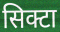
सिक्टा